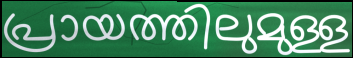
പ്രായത്തിലുമുള്ള